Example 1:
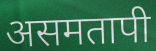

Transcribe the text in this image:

असमतापी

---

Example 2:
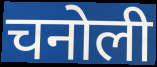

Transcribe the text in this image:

चनोली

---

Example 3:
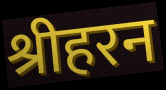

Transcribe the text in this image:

श्रीहरन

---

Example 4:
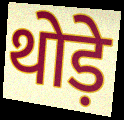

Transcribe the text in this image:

थोड़े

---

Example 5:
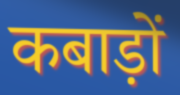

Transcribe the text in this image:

कबाड़ों